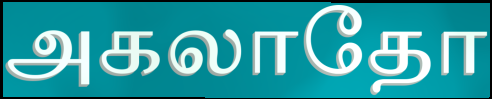
அகலாதோ